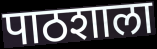
पाठशाला